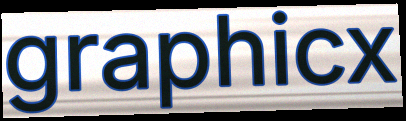
graphicx